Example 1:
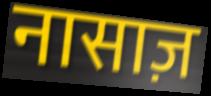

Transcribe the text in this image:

नासाज़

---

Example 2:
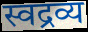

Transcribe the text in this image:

स्वद्रव्य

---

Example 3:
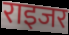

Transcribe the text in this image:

राइजर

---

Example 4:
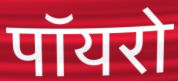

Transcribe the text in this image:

पॉयरो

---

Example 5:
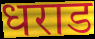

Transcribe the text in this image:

धराड